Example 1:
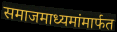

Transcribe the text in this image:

समाजमाध्यमांमार्फत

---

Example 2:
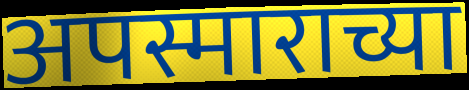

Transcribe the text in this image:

अपस्माराच्या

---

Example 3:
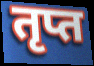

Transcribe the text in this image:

तृप्त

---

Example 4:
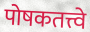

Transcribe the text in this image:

पोषकतत्त्वे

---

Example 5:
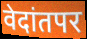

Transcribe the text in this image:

वेदांतपर